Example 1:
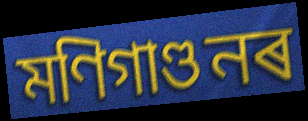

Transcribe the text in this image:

মণিগাণ্ডনৰ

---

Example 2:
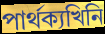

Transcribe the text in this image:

পাৰ্থক্যখিনি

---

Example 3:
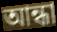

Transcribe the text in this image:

আন্ধা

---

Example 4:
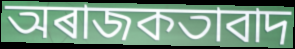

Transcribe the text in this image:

অৰাজকতাবাদ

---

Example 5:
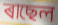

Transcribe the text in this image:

ৰাছেল